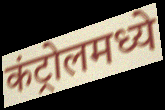
कंट्रोलमध्ये